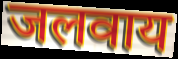
जलवाय